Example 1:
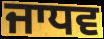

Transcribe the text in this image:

ਜਾਧਵ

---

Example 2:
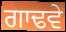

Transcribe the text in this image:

ਗਾਢਵੇ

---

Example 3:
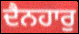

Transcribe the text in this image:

ਦੈਨਹਾਰੁ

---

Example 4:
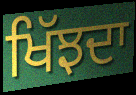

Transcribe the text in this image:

ਖਿੱਝਦਾ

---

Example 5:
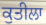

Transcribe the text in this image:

ਕੁਤੀਲਾ